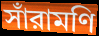
সাঁরামণি